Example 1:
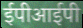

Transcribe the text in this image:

ईपीआईपी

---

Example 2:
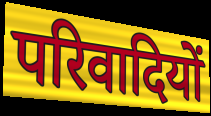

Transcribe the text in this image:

परिवादियों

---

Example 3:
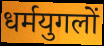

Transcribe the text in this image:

धर्मयुगलों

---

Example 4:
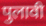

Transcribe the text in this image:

पुलावी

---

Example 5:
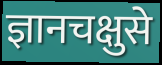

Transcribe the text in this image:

ज्ञानचक्षुसे